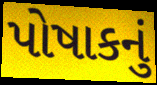
પોષાકનું